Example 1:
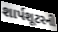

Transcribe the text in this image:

શાર્પશૂટરની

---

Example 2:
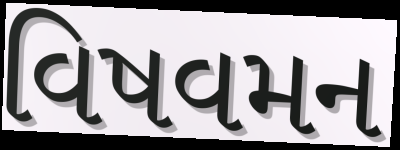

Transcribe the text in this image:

વિષવમન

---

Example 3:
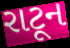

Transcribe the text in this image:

રાટૂન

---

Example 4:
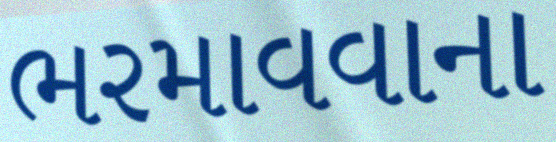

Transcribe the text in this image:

ભરમાવવાના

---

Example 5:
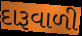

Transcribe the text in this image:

દારૂવાળી